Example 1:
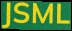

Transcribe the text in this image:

JSML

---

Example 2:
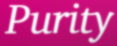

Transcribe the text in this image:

Purity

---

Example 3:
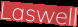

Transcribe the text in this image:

Laswell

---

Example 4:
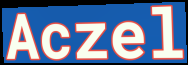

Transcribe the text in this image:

Aczel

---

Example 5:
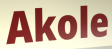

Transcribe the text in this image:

Akole